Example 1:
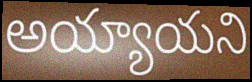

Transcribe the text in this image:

అయ్యాయని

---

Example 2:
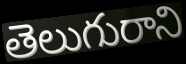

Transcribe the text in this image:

తెలుగురాని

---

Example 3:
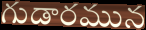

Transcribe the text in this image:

గుడారమున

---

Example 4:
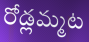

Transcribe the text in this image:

రోడ్లమ్మట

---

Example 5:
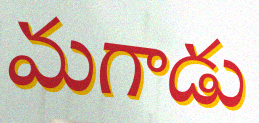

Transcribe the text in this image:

మగాడు